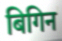
बिगिन